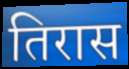
तिरास